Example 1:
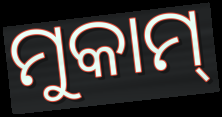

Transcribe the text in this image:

ମୁକାମ୍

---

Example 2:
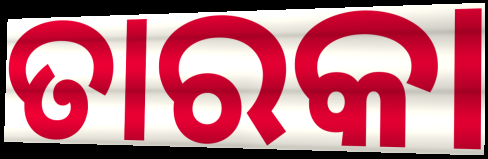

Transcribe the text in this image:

ତାରକା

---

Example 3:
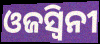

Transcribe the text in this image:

ଓଜସ୍ଵିନୀ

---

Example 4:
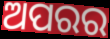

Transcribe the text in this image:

ଅପରର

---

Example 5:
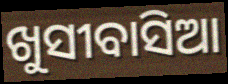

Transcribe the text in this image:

ଖୁସୀବାସିଆ